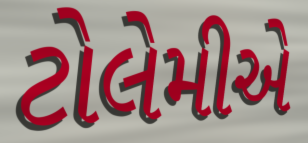
ટોલેમીએ